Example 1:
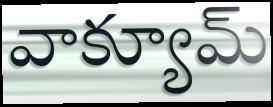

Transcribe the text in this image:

వాక్యూమ్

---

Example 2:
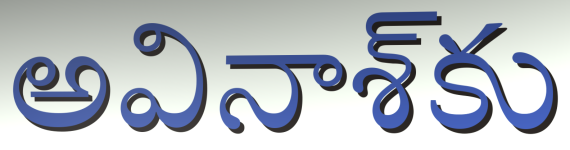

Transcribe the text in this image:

అవినాశ్‌కు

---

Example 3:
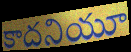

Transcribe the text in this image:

కాదనియూ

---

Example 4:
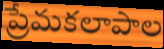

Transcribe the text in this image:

ప్రేమకలాపాల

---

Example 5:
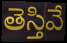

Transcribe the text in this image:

తెస్తివే